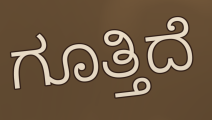
ಗೂತ್ತಿದೆ